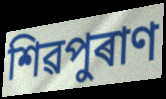
শিৱপুৰাণ